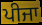
ਪੀਜਾ